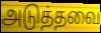
அடுத்தவை